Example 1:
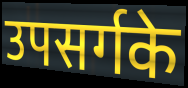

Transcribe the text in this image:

उपसर्गके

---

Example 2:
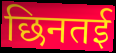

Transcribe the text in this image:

छिनतई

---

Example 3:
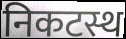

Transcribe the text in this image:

निकटस्थ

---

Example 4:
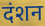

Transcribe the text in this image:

दंशन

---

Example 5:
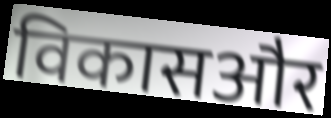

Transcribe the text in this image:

विकासऔर